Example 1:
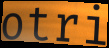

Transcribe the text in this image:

otri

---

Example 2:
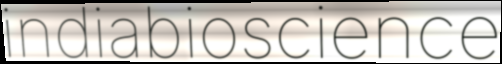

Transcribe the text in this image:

indiabioscience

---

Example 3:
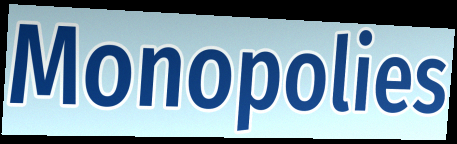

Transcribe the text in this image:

Monopolies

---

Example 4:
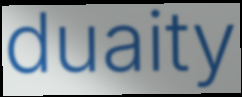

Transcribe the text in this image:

duaity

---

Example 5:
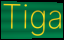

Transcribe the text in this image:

Tiga